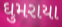
ઘુમરાયા